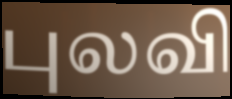
புலவி